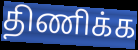
திணிக்க